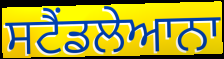
ਸਟੈਂਡਲੇਆਨਾ